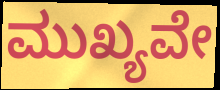
ಮುಖ್ಯವೇ